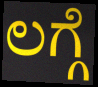
ಲಗ್ಗೆ